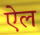
ऐल